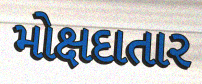
મોક્ષદાતાર